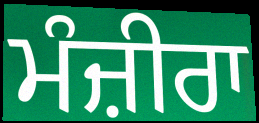
ਮੰਜ਼ੀਰਾ